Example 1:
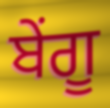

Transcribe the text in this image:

ਬੇਂਗੂ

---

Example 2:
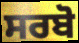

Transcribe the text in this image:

ਸਰਬੋ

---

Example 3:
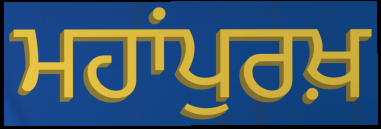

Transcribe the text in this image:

ਮਹਾਂਪੁਰਖ਼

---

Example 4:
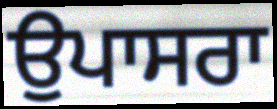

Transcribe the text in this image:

ਉਪਾਸਰਾ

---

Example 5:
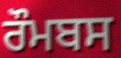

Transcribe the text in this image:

ਰੌਮਬਸ